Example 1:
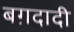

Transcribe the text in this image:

बग़दादी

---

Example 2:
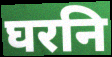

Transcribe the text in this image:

घरनि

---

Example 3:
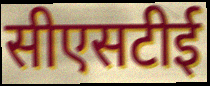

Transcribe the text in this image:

सीएसटीई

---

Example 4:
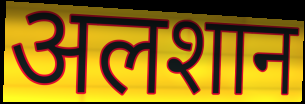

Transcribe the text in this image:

अलशान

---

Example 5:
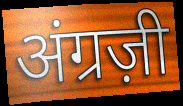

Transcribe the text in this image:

अंग्रज़ी